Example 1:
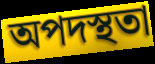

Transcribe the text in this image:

অপদস্থতা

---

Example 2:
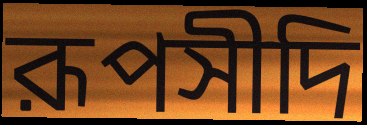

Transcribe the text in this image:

রূপসীদি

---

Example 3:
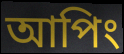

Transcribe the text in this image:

আপিং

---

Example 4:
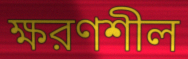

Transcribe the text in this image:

ক্ষরণশীল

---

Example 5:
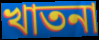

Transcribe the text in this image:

খাতনা